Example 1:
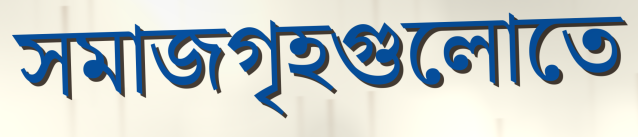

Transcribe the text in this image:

সমাজগৃহগুলোতে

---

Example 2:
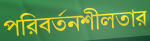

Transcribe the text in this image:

পরিবর্তনশীলতার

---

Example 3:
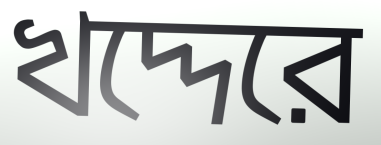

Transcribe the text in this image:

খদ্দেরে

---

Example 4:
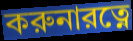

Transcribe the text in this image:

করুনারত্নে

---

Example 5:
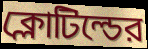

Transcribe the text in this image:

ক্লোটিল্ডের